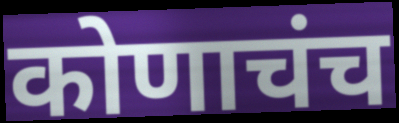
कोणाचंच